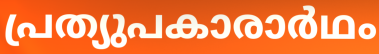
പ്രത്യുപകാരാർഥം